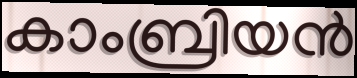
കാംബ്രിയൻ